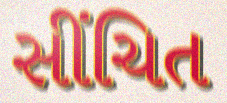
સીંચિત